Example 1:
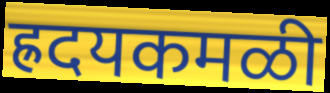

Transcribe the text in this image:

ह्रदयकमळी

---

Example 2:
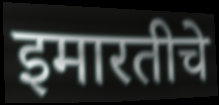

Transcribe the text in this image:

इमारतीचे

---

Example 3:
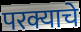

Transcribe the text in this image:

परक्याचे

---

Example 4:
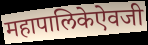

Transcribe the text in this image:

महापालिकेऐवजी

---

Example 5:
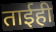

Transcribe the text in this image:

ताईही